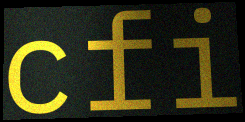
cfi